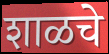
शाळचे